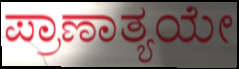
ಪ್ರಾಣಾತ್ಯಯೇ